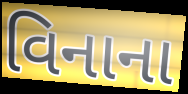
વિનાના